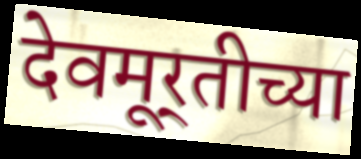
देवमूर्तीच्या